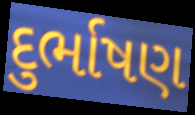
દુર્ભાષણ